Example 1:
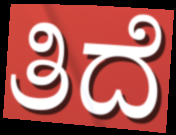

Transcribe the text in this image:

ತಿದೆ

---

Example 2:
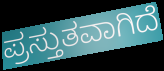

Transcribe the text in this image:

ಪ್ರಸ್ತುತವಾಗಿದೆ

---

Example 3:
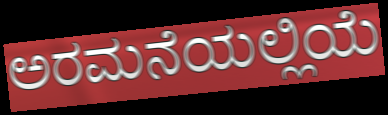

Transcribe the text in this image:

ಅರಮನೆಯಲ್ಲಿಯೆ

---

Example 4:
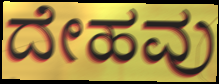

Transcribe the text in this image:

ದೇಹವು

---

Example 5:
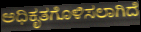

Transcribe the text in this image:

ಅಧಿಕೃತಗೊಳಿಸಲಾಗಿದೆ